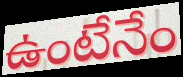
ఉంటేనేం